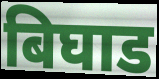
बिघाड